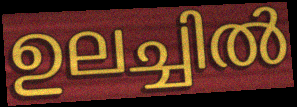
ഉലച്ചിൽ